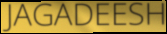
JAGADEESH